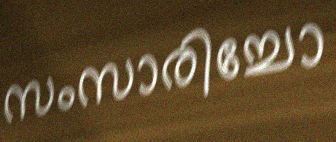
സംസാരിച്ചോ